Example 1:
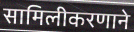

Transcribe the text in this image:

सामिलीकरणाने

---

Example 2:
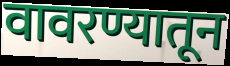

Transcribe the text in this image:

वावरण्यातून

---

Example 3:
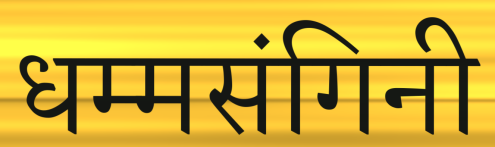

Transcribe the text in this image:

धम्मसंगिनी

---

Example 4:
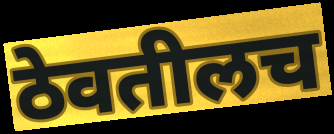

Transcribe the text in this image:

ठेवतीलच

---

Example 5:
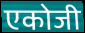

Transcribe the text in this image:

एकोजी